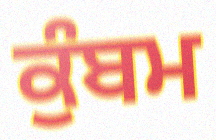
ਕੁੰਬਮ